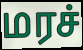
மரச்